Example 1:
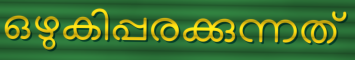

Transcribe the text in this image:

ഒഴുകിപ്പരക്കുന്നത്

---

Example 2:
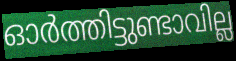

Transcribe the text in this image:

ഓർത്തിട്ടുണ്ടാവില്ല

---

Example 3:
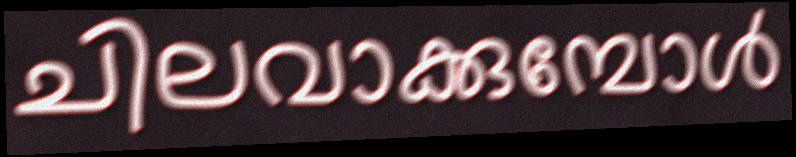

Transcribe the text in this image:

ചിലവാക്കുമ്പോൾ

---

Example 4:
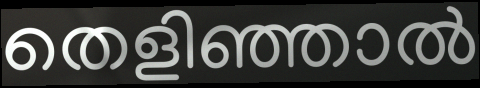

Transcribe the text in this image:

തെളിഞ്ഞാൽ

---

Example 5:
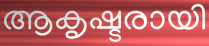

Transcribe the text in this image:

ആകൃഷ്ടരായി